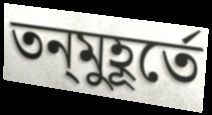
তন্‌মুহূর্তে